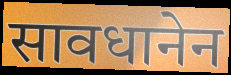
सावधानेन